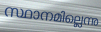
സ്ഥാനമില്ലെന്നു